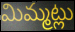
మిమ్మట్లు